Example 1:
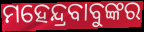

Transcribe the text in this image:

ମହେନ୍ଦ୍ରବାବୁଙ୍କର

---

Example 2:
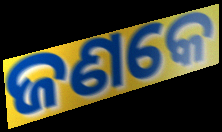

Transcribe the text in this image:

ଜଣକେ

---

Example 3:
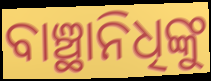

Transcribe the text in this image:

ବାଞ୍ଛାନିଧିଙ୍କୁ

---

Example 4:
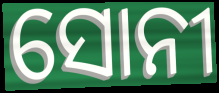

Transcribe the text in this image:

ସୋନୀ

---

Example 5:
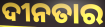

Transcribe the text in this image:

ଦୀନତାର